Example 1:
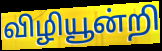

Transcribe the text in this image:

விழியூன்றி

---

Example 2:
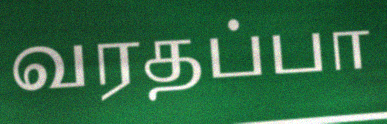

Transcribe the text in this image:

வரதப்பா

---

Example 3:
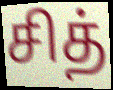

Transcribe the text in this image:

சித்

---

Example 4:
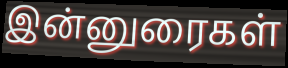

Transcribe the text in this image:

இன்னுரைகள்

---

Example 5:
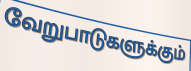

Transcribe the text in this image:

வேறுபாடுகளுக்கும்